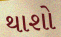
થાશો